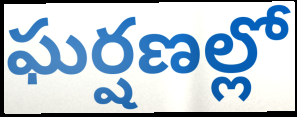
ఘర్షణల్లో